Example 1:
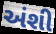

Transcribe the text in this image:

અંશી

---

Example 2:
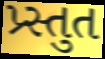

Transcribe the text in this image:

પ્ર્સ્તુત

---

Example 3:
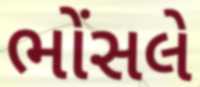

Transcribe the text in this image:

ભોંસલે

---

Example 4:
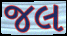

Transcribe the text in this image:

જલ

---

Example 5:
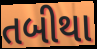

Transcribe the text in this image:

તબીથા